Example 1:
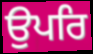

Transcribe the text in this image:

ਉਪਰਿ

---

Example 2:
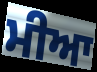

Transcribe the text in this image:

ਮੀਆ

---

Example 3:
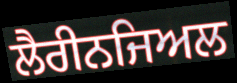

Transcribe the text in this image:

ਲੈਰੀਨਜਿਅਲ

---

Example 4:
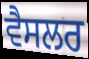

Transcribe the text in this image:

ਵੈਸਲਰ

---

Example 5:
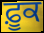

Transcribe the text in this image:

ਫ਼ੂਕ